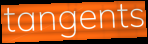
tangents